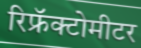
रिफ्रॅक्टोमीटर